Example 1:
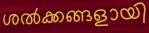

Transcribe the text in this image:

ശൽക്കങ്ങളായി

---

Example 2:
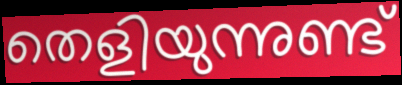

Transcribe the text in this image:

തെളിയുന്നുണ്ട്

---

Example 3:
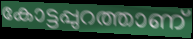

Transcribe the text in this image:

കോട്ടപ്പുറത്താണ്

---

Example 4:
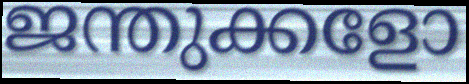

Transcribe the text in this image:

ജന്തുക്കളോ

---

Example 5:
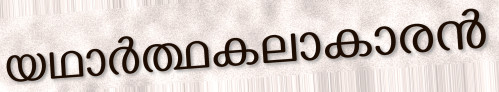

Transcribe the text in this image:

യഥാർത്ഥകലാകാരൻ